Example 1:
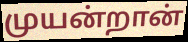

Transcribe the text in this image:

முயன்றான்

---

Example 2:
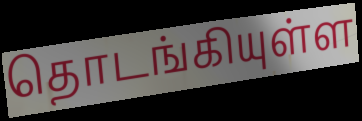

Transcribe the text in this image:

தொடங்கியுள்ள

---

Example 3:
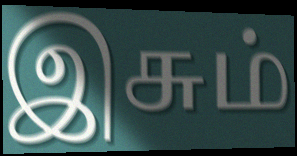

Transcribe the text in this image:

இசும்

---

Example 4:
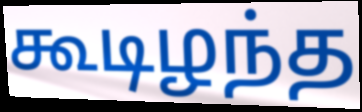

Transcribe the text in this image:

கூடிழந்த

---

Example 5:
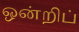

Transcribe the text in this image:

ஒன்றிப்